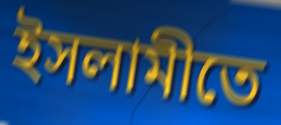
ইসলামীতে